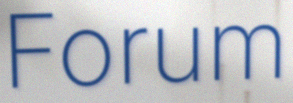
Forum